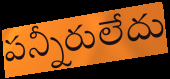
పన్నీరులేదు